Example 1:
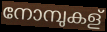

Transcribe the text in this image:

നോമ്പുകള്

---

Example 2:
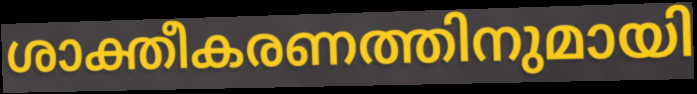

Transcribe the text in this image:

ശാക്തീകരണത്തിനുമായി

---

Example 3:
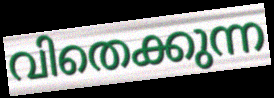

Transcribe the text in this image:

വിതെക്കുന്ന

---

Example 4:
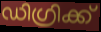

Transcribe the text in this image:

ഡിഗ്രിക്ക്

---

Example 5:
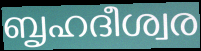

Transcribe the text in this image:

ബൃഹദീശ്വര